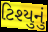
ટિશ્યુનું